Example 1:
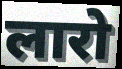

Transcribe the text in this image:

लारो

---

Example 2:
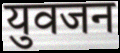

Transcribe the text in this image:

युवजन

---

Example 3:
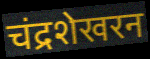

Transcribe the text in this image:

चंद्रशेखरन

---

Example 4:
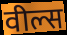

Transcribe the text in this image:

वील्स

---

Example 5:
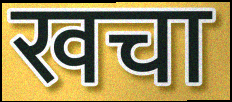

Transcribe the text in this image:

खचा